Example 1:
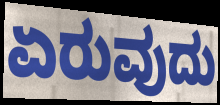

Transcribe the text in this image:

ಏರುವುದು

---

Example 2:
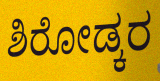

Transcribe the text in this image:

ಶಿರೋಡ್ಕರ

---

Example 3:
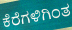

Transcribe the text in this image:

ಕೆರೆಗಳಿಗಿಂತ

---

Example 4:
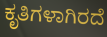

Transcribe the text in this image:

ಕೃತಿಗಳಾಗಿರದೆ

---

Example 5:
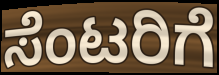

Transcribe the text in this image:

ಸೆಂಟರಿಗೆ